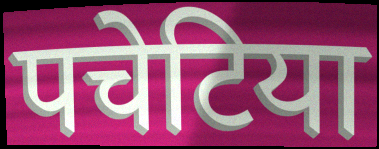
पचेटिया